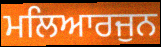
ਮਲਿਆਰਜੁਨ